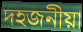
দহজনীয়া